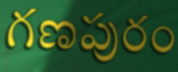
గణపురం